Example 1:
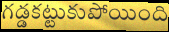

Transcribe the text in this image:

గడ్డకట్టుకుపోయింది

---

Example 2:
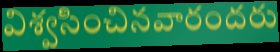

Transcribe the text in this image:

విశ్వసించినవారందరు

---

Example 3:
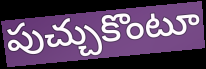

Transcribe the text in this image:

పుచ్చుకొంటూ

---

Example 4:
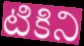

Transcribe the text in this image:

టికిని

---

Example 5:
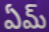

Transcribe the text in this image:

ఏమ్